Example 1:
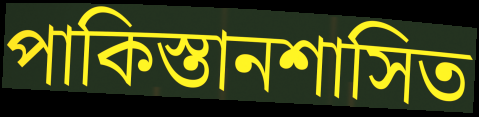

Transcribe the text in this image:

পাকিস্তানশাসিত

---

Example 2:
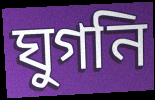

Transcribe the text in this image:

ঘুগনি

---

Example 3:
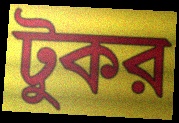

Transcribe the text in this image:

টুকর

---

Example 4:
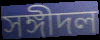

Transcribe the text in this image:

সঙ্গীদল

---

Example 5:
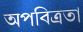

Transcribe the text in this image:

অপবিত্রতা